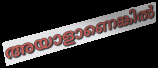
അയാളാണെങ്കിൽ